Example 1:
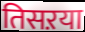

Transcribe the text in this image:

तिसऱया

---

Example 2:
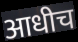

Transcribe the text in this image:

आधीच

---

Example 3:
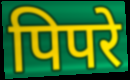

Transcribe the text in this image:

पिपरे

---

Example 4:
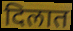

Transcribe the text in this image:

दिलात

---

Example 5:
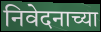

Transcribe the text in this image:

निवेदनाच्या